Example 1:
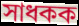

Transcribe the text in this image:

সাধকক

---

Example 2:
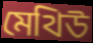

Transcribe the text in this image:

মেথিউ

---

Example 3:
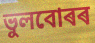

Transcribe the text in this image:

ভুলবোৰৰ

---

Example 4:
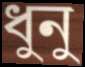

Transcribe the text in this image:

ধুনু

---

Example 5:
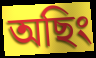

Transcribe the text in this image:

অছিং